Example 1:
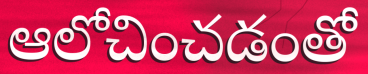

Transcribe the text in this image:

ఆలోచించడంతో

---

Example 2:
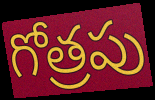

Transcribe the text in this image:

గోత్రపు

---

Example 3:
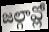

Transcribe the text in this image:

జల్గావ్లో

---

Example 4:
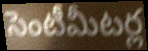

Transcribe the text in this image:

సెంటీమీటర్ల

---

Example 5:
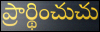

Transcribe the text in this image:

ప్రార్థించుచు